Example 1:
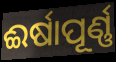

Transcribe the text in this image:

ଈର୍ଷାପୂର୍ଣ୍ଣ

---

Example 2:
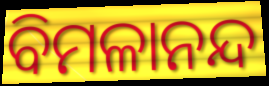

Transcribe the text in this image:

ବିମଳାନନ୍ଦ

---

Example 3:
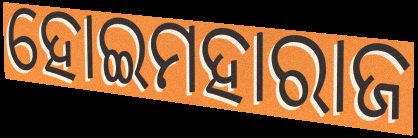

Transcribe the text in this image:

ହୋଇମହାରାଜ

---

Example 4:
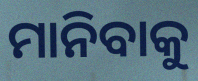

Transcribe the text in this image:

ମାନିବାକୁ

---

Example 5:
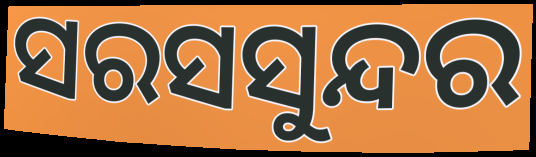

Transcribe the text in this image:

ସରସସୁନ୍ଦର